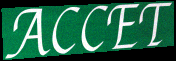
ACCET